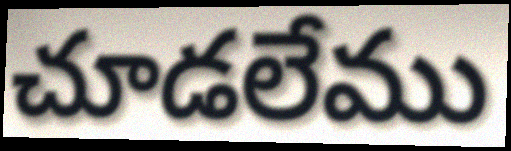
చూడలేము